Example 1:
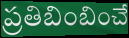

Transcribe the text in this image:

ప్రతిబింబించే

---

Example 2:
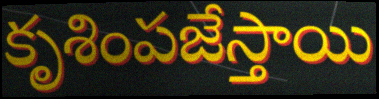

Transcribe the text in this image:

కృశింపజేస్తాయి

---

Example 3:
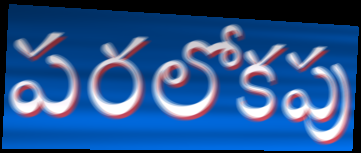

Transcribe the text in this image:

పరలోకపు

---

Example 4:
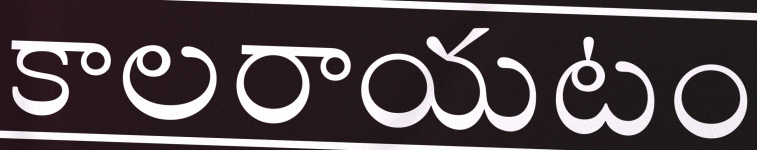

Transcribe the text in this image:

కాలరాయటం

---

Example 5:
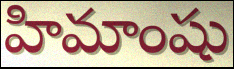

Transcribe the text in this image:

హిమాంషు